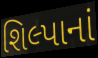
શિલ્પાનાં